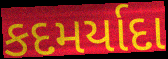
કદમર્યાદા